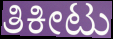
ತಿಕೀಟು